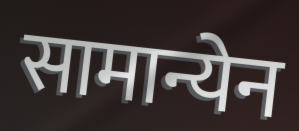
सामान्येन